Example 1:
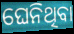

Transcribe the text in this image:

ଘେନିଥିବା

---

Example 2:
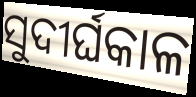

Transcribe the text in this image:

ସୁଦୀର୍ଘକାଳ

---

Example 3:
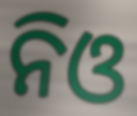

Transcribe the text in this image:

ନିଓ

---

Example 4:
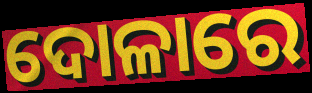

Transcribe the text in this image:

ଦୋଳାରେ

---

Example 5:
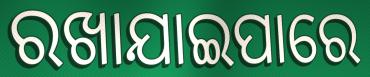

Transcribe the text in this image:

ରଖାଯାଇପାରେ